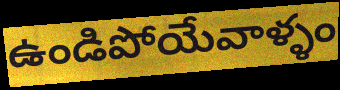
ఉండిపోయేవాళ్ళం